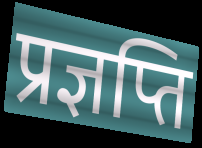
प्रज्ञप्ति